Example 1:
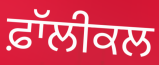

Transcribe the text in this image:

ਫ਼ਾੱਲੀਕਲ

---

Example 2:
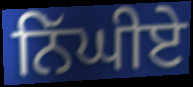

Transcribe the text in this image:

ਨਿੱਘੀਏ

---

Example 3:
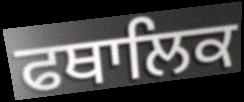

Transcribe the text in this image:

ਫਥਾਲਿਕ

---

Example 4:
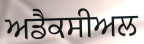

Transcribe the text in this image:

ਅਡੈਕਸੀਅਲ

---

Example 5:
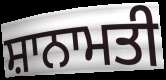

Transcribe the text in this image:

ਸ਼ਾਨਾਮਤੀ